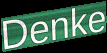
Denke